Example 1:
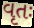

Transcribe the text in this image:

વૃતઃ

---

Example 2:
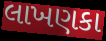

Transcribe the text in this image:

લાખણકા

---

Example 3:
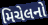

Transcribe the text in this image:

મિચેલનો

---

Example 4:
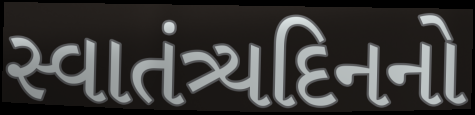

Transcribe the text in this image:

સ્વાતંત્ર્યદિનનો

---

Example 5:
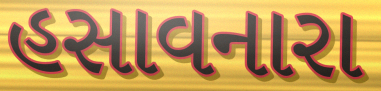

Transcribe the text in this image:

હસાવનારા